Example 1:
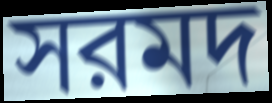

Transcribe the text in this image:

সরমদ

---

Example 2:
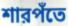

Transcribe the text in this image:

শারপঁতে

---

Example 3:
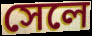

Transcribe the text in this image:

সেলে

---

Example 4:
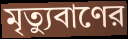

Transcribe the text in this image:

মৃত্যুবাণের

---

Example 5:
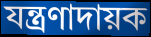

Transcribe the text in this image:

যন্ত্রণাদায়ক